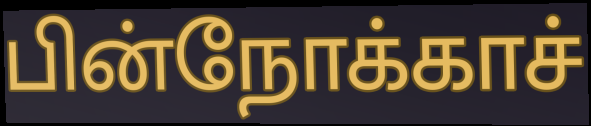
பின்நோக்காச்